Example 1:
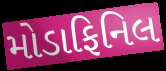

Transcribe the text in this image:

મોડાફિનિલ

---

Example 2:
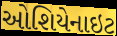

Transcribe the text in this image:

ઓશિયેનાઇટ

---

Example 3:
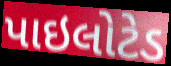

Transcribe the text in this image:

પાઇલોટેડ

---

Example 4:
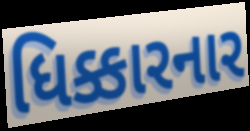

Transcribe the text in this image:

ધિક્કારનાર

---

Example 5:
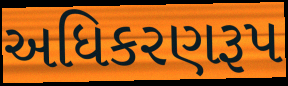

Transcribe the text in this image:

અધિકરણરૂપ